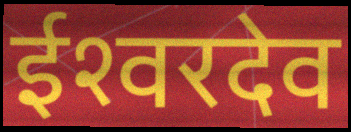
ईश्वरदेव